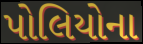
પોલિયોના